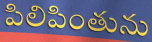
పిలిపింతును